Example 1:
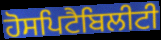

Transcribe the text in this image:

ਹੋਸਪਿਟੈਬਿਲੀਟੀ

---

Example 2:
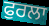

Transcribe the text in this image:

ਫੁਰਲਾ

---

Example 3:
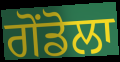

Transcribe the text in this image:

ਗੋਂਡੋਲਾ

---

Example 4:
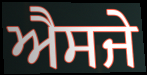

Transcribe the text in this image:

ਐਸਜੇ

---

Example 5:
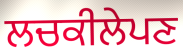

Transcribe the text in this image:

ਲਚਕੀਲੇਪਣ